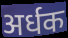
अर्धक